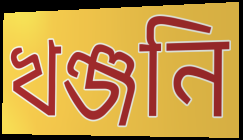
খঞ্জনি